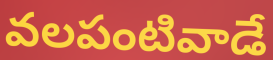
వలపంటివాడే